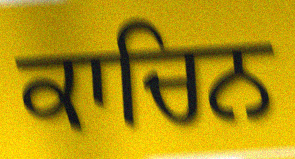
ਕਾਚਿਨ